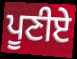
ਪੂਣੀਏ